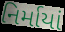
નિર્માયાં